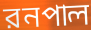
রনপাল